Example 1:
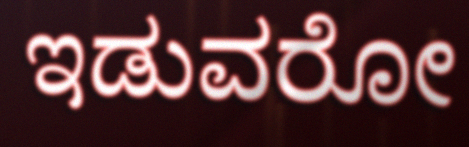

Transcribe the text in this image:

ಇಡುವರೋ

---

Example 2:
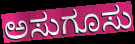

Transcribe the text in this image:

ಅಸುಗೂಸು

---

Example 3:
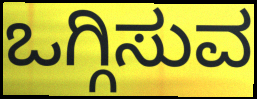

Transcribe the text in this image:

ಒಗ್ಗಿಸುವ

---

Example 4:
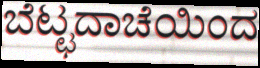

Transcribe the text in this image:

ಬೆಟ್ಟದಾಚೆಯಿಂದ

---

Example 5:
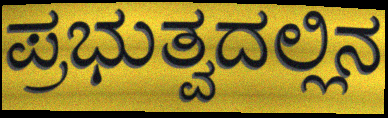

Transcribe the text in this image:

ಪ್ರಭುತ್ವದಲ್ಲಿನ